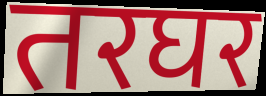
तरघर